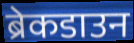
ब्रेकडाउन